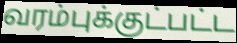
வரம்புக்குட்பட்ட